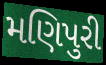
મણિપુરી